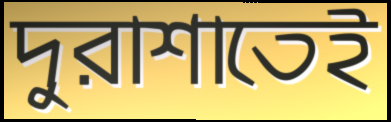
দুরাশাতেই